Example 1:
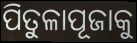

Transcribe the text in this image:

ପିତୁଳାପୂଜାକୁ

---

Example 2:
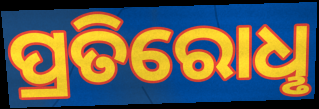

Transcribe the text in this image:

ପ୍ରତିରୋଧୢ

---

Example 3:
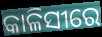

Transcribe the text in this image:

କାଳିସୀରେ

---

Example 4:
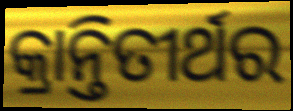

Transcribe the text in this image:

କ୍ରାନ୍ତିତୀର୍ଥର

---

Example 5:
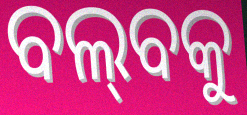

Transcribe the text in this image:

ବଲ୍‌ବକୁ